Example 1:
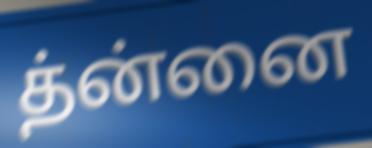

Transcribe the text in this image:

த்ன்னை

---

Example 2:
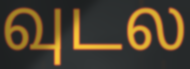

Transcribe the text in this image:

வுடல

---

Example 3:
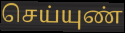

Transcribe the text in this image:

செய்யுண்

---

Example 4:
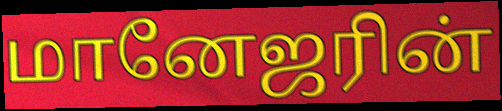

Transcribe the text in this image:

மானேஜரின்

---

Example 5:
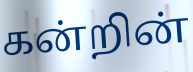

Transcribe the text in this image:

கன்றின்